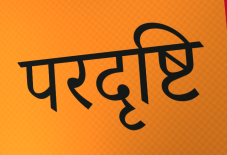
परदृष्टि